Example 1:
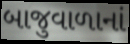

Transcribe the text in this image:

બાજુવાળાનાં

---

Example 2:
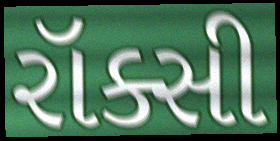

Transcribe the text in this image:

રૉક્સી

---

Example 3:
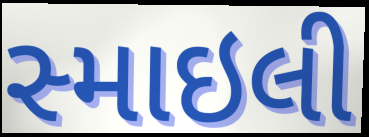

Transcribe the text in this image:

સ્માઇલી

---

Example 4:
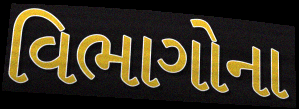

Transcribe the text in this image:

વિભાગોના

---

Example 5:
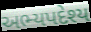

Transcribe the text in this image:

અભ્યપદેશ્ય